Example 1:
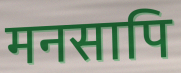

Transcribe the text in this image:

मनसापि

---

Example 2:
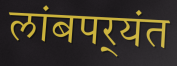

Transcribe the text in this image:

लांबपर्यंत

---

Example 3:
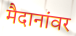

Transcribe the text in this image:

मैदानांवर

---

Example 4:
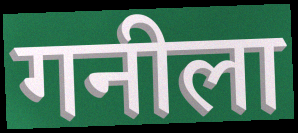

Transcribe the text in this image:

गनीला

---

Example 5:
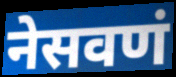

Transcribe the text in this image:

नेसवणं